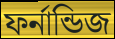
ফর্নান্ডিজ